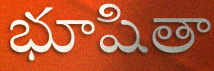
భూషితా